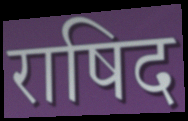
राषिद